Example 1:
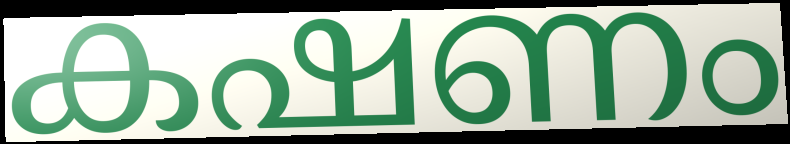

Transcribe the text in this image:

കഷണം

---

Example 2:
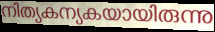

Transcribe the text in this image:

നിത്യകന്യകയായിരുന്നു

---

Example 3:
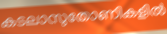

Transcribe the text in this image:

കടലാസുതോണികളിൽ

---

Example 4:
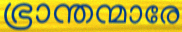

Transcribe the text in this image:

ഭ്രാന്തന്മാരേ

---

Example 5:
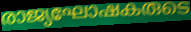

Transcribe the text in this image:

രാജ്യഘോഷകരുടെ